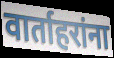
वार्ताहरांना